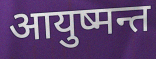
आयुष्मन्त